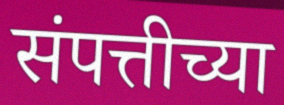
संपत्तीच्या